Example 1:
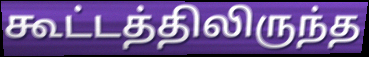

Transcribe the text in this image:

கூட்டத்திலிருந்த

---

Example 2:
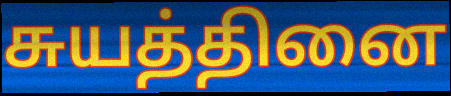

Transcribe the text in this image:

சுயத்தினை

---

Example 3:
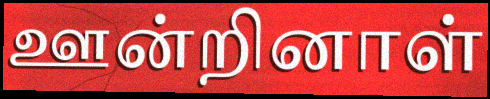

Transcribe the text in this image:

ஊன்றினாள்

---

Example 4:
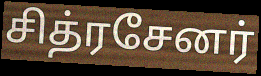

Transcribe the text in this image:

சித்ரசேனர்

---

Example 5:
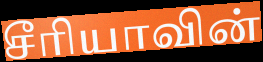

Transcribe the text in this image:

சீரியாவின்